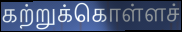
கற்றுக்கொள்ளச்